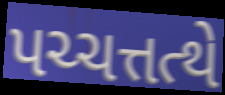
પચ્ચત્તત્થે